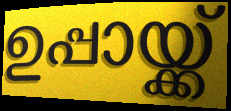
ഉപ്പായ്ക്ക്